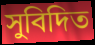
সুবিদিত